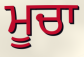
ਮੂਚਾ